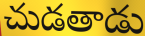
చుడతాడు